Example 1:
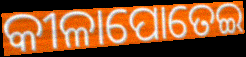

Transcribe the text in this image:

କୀଳାପୋତେଇ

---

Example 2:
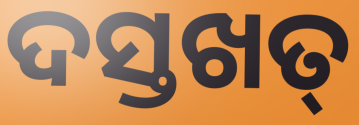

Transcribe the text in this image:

ଦସ୍ତଖତ୍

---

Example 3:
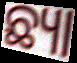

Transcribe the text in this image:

ଛ୍ୟା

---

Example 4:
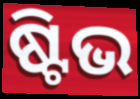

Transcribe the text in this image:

ଷ୍ଟିଭ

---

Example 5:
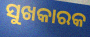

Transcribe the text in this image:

ସୁଖକାରକ